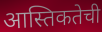
आस्तिकतेची